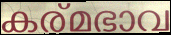
കര്മഭാവ